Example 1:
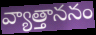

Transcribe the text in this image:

వ్యాత్తాననం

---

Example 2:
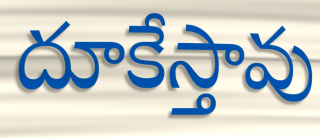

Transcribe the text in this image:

దూకేస్తావు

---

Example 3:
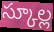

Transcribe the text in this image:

స్కూల్ల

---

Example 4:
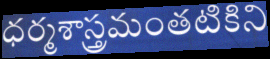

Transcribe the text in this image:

ధర్మశాస్త్రమంతటికిని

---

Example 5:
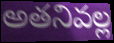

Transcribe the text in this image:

అతనివల్ల